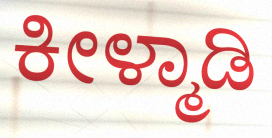
ಕೀಳ್ಮಾಡಿ